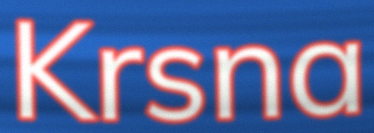
Krsna